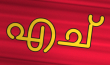
എച്